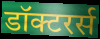
डॉक्टरर्स